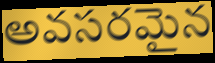
అవసరమైన